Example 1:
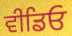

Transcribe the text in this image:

ਵੀਡਿਓ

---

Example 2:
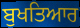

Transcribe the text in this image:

ਬੁਖਤਿਆਰ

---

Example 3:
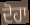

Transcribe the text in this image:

ਦੋਹਾ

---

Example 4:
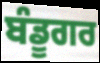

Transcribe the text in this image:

ਬੰਡੂਗਰ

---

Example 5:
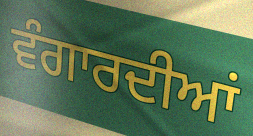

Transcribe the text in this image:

ਵੰਗਾਰਦੀਆਂ